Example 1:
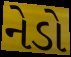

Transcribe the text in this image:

નેડો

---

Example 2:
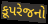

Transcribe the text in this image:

કૂપરેજનો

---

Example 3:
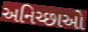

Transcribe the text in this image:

અનિચ્છાઓ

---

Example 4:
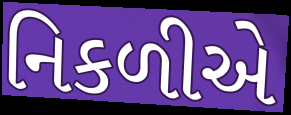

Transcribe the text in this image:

નિકળીએ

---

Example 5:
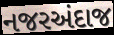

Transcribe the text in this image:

નજરઅંદાજ